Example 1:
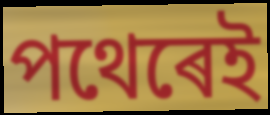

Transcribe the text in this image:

পথেৰেই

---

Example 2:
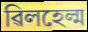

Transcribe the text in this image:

ৱিলহেল্ম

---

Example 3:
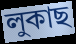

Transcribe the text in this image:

লুকাছ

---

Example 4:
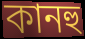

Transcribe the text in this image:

কানহু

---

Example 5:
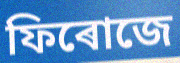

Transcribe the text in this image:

ফিৰোজে